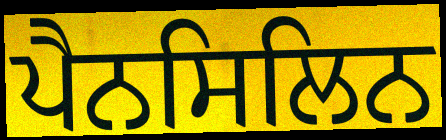
ਪੈਨਸਿਲਿਨ